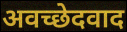
अवच्छेदवाद